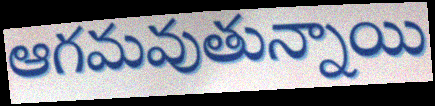
ఆగమవుతున్నాయి